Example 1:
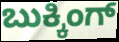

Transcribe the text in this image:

ಬುಕ್ಕಿಂಗ್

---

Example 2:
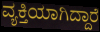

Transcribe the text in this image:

ವ್ಯಕ್ತಿಯಾಗಿದ್ದಾರೆ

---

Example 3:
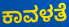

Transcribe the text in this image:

ಕಾವಳತೆ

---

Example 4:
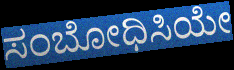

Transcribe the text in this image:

ಸಂಬೋಧಿಸಿಯೇ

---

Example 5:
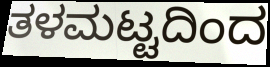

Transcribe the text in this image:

ತಳಮಟ್ಟದಿಂದ